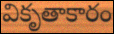
వికృతాకారం